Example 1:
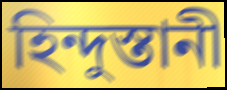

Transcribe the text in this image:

হিন্দুস্তানী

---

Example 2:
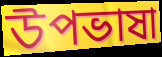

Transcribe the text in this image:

উপভাষা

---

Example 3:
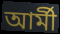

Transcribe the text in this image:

আৰ্মী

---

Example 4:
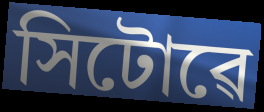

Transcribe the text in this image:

সিটোৱে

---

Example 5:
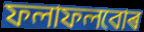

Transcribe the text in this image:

ফলাফলবোৰ